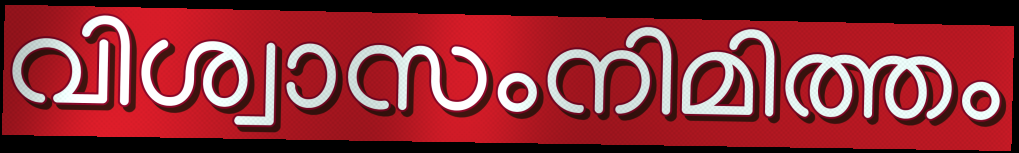
വിശ്വാസംനിമിത്തം